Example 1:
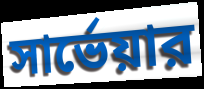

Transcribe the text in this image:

সার্ভেয়ার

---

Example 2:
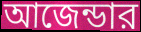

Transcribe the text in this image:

আজেন্ডার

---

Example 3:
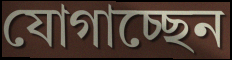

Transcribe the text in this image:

যোগাচ্ছেন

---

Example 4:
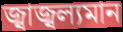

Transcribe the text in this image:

জ্বাজ্বল্যমান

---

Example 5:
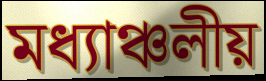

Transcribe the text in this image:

মধ্যাঞ্চলীয়